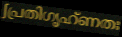
ഽപ്രതിഗൃഹ്ണതഃ